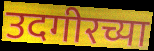
उदगीरच्या